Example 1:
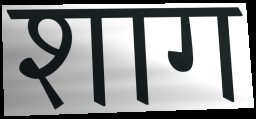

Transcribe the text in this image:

शाग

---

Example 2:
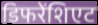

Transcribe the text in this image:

डिफरेंशिएट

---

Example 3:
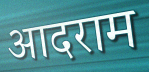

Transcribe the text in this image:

आदराम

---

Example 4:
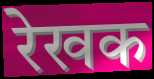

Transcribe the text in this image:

रेखक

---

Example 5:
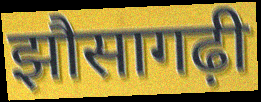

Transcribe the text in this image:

झौसागढ़ी